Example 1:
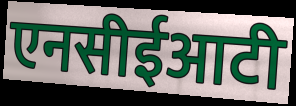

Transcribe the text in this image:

एनसीईआटी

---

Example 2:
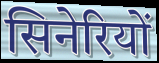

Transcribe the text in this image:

सिनेरियों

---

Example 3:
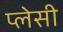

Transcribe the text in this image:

प्लेसी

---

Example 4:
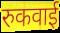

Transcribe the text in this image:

रुकवाई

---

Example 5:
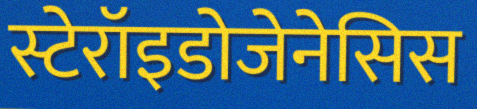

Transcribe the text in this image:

स्टेरॉइडोजेनेसिस